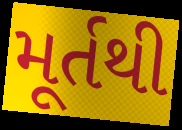
મૂર્તથી